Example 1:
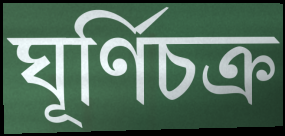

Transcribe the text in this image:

ঘূর্ণিচক্র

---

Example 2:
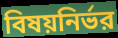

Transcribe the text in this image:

বিষয়নির্ভর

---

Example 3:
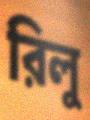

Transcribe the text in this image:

রিলু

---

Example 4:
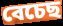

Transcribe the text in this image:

বেচেছ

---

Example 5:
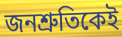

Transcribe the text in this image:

জনশ্রুতিকেই